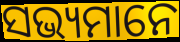
ସଭ୍ୟମାନେ